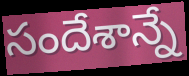
సందేశాన్నే